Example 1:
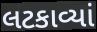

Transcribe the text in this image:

લટકાવ્યાં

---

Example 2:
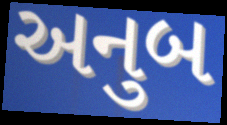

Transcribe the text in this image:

અનુબ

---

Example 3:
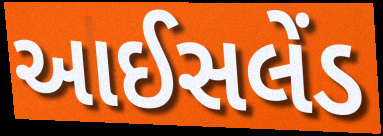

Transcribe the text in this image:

આઈસલેંડ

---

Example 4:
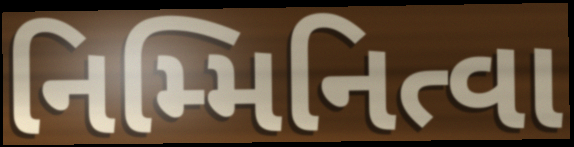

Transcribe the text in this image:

નિમ્મિનિત્વા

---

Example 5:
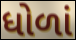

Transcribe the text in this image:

ધોળાં